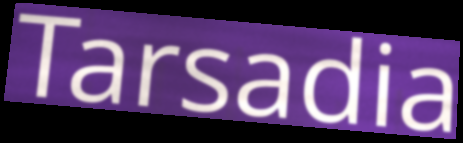
Tarsadia